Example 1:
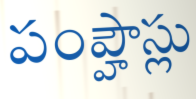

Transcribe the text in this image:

పంప్హౌస్లు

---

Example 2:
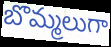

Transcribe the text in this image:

బొమ్మలుగా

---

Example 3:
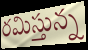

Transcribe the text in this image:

రమిస్తున్న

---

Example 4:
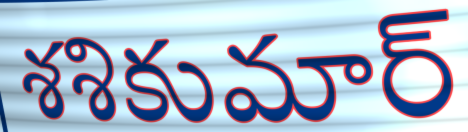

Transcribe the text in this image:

శశికుమార్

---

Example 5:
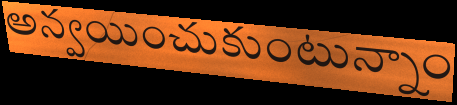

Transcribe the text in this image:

అన్వయించుకుంటున్నాం